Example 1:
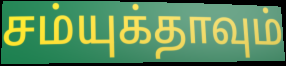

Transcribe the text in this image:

சம்யுக்தாவும்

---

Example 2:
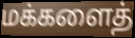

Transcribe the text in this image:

மக்களைத்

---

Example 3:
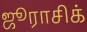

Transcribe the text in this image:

ஜூராசிக்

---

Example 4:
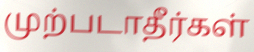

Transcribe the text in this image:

முற்படாதீர்கள்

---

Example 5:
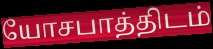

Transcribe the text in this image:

யோசபாத்திடம்